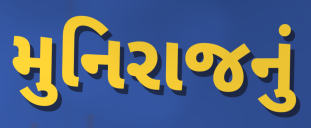
મુનિરાજનું